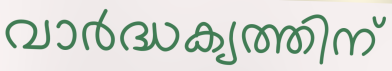
വാർദ്ധക്യത്തിന്